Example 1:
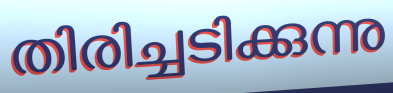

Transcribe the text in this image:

തിരിച്ചടിക്കുന്നു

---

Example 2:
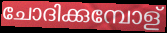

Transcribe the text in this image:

ചോദിക്കുമ്പോള്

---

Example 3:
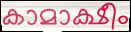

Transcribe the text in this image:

കാമാക്ഷീം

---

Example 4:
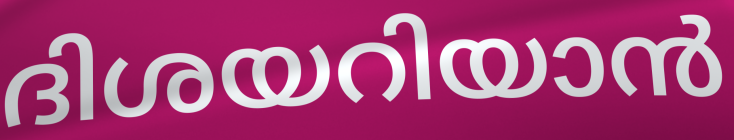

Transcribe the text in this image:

ദിശയറിയാൻ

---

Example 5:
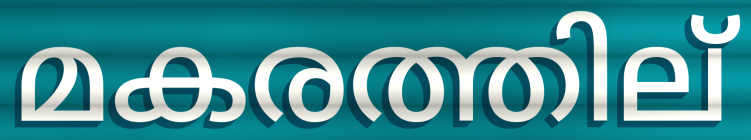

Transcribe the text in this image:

മകരത്തില്